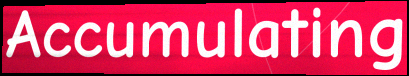
Accumulating